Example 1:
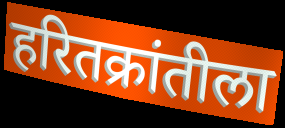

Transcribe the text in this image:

हरितक्रांतीला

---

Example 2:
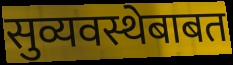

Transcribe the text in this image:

सुव्यवस्थेबाबत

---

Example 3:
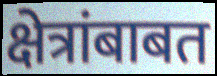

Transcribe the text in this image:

क्षेत्रांबाबत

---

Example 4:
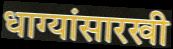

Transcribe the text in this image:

धाग्यांसारखी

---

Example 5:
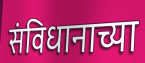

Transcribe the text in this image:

संविधानाच्या